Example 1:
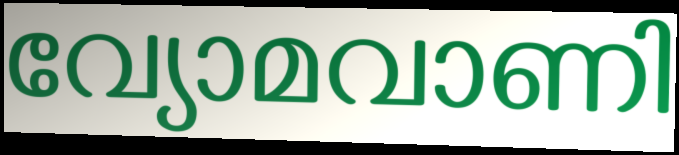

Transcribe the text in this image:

വ്യോമവാണി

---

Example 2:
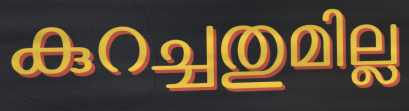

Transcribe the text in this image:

കുറച്ചതുമില്ല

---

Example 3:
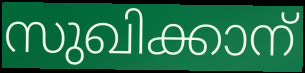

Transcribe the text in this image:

സുഖിക്കാന്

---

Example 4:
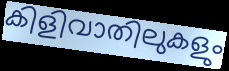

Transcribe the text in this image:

കിളിവാതിലുകളും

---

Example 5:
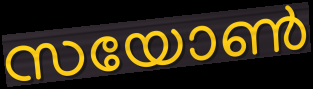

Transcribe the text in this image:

സയോൺ